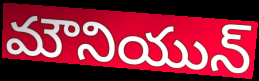
మౌనియున్